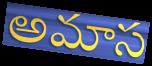
అమాస